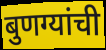
बुणग्यांची